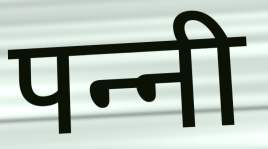
पन्नी